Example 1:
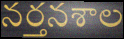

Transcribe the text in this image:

నర్తనశాల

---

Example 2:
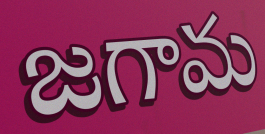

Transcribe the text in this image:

జగామ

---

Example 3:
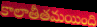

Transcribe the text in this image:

కాలాతీతమయింది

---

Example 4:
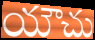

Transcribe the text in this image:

యౌచు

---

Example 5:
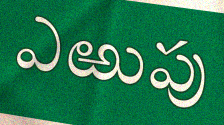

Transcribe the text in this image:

ఎఱుపు